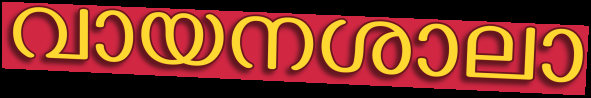
വായനശാലാ